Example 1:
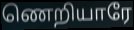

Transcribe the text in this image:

ணெறியாரே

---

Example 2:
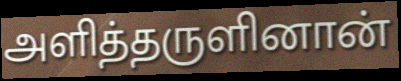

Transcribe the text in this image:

அளித்தருளினான்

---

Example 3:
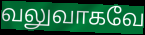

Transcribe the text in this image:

வலுவாகவே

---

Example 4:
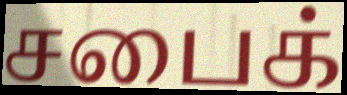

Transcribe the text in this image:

சபைக்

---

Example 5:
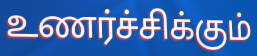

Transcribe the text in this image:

உணர்ச்சிக்கும்